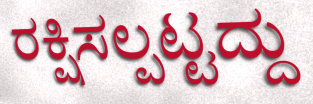
ರಕ್ಷಿಸಲ್ಪಟ್ಟದ್ದು